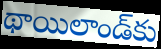
థాయిలాండ్‌కు